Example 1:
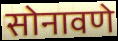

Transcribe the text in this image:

सोनावणे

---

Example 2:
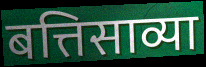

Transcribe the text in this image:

बत्तिसाव्या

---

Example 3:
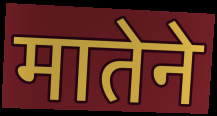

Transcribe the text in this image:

मातेने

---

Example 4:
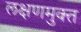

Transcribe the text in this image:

लक्षणमुक्त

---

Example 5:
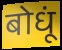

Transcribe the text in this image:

बोधूं